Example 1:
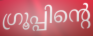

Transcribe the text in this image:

ഗ്രൂപ്പിന്റെ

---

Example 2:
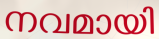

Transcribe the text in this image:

നവമായി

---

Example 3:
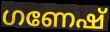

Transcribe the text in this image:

ഗണേഷ്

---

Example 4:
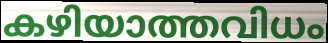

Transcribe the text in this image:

കഴിയാത്തവിധം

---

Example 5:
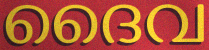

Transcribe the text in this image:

ദൈവ